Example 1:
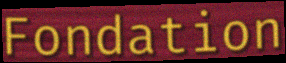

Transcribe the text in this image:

Fondation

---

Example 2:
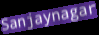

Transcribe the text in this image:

Sanjaynagar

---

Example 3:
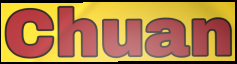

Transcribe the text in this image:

Chuan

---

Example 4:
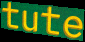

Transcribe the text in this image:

tute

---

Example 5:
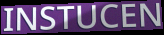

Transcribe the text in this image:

INSTUCEN